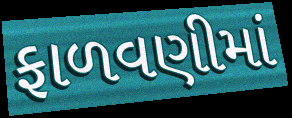
ફાળવણીમાં